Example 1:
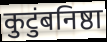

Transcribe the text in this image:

कुटुंबनिष्ठा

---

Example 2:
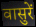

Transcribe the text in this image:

वासुरें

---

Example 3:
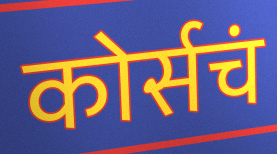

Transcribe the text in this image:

कोर्सचं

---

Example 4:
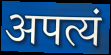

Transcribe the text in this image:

अपत्यं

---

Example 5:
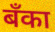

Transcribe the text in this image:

बँका